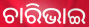
ଚାରିଭାଇ